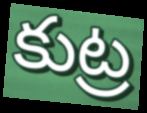
కుట్ర